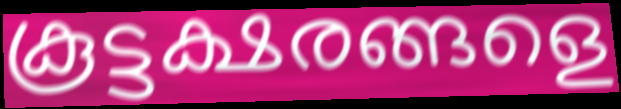
കൂട്ടക്ഷരങ്ങളെ